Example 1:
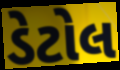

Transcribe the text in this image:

ડેટોલ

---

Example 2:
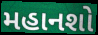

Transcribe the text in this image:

મહાનશો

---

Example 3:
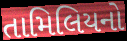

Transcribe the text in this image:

તામિલિયનો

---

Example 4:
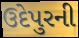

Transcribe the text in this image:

ઉદેપુરની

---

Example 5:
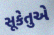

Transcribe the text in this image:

સૂકેતુએ